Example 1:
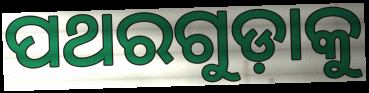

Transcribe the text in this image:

ପଥରଗୁଡ଼ାକୁ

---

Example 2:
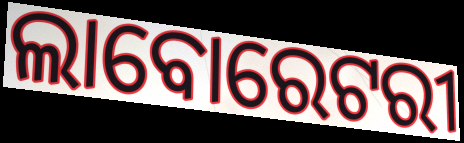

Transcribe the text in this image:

ଲାବୋରେଟରୀ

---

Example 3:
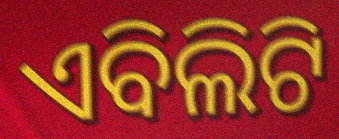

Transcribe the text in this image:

ଏବିଲିଟି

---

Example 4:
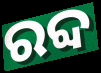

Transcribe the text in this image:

ରବ୍ଦ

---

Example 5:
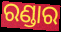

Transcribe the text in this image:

ରଣ୍ଡାର